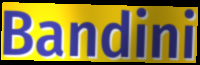
Bandini